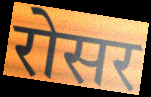
रोसर